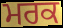
ਮਰਕ